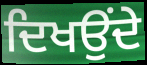
ਦਿਖਉਂਦੇ